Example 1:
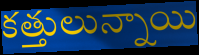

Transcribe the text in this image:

కత్తులున్నాయి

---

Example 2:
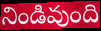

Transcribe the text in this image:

నిండివుంది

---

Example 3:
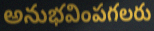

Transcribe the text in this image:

అనుభవింపగలరు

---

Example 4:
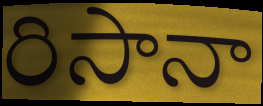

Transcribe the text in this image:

రిసానా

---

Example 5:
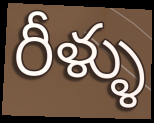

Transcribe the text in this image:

రీళ్ళు